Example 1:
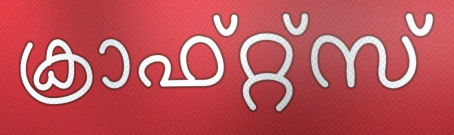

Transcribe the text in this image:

ക്രാഫ്റ്റ്സ്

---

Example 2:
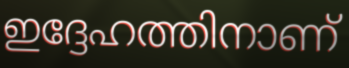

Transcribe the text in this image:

ഇദ്ദേഹത്തിനാണ്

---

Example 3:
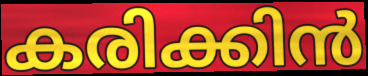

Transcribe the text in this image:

കരിക്കിൻ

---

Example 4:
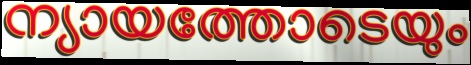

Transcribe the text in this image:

ന്യായത്തോടെയും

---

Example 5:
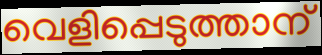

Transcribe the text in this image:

വെളിപ്പെടുത്താന്